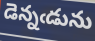
డెన్నఁడును